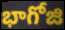
భాగోజి